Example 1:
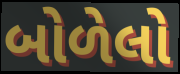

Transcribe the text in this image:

બોળેલો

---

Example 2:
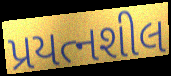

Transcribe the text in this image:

પ્રયત્નશીલ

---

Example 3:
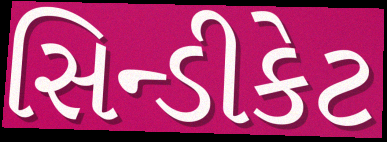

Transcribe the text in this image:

સિન્ડીકેટ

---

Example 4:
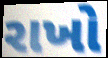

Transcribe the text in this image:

રાખો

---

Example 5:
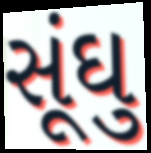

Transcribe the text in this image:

સૂંઘુ